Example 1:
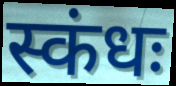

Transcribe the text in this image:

स्कंधः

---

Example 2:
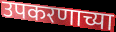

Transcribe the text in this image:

उपकरणाच्या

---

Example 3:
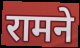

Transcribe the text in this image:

रामने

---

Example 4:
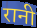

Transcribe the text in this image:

रानी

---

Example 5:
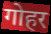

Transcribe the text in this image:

गोहर